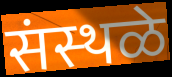
संस्थळे